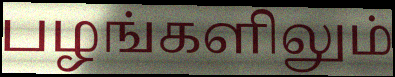
பழங்களிலும்